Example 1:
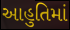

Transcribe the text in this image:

આહુતિમાં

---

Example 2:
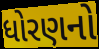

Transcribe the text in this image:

ધોરણનો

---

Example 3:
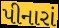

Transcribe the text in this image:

પીનારાં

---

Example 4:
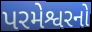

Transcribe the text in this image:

પરમેશ્વરનો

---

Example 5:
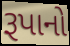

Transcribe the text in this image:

રૂપાનો